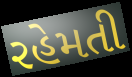
રહેમતી